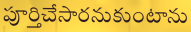
పూర్తిచేసారనుకుంటాను